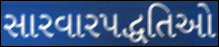
સારવારપદ્ધતિઓ